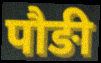
पौङी